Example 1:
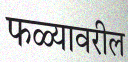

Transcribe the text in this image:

फळ्यावरील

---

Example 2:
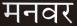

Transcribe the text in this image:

मनवर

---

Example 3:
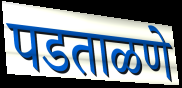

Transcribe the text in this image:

पडताळणे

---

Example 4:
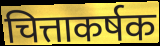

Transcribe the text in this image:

चित्ताकर्षक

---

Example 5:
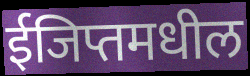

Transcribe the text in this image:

ईजिप्तमधील